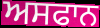
ਅਸਫਾਨ